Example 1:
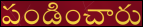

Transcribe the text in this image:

పండించారు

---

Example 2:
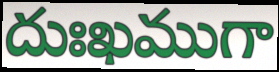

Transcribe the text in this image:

దుఃఖముగా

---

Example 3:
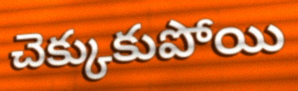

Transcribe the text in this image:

చెక్కుకుపోయి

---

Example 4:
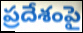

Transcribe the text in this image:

ప్రదేశంపై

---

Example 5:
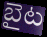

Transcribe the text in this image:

బైట